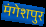
मंगेशपुर